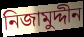
নিজামুদ্দীন